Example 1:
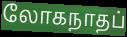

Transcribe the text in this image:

லோகநாதப்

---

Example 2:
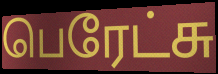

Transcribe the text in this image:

பெரேட்சு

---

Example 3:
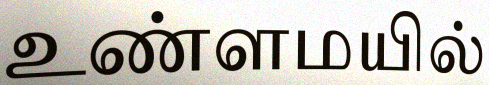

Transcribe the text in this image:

உண்ளமயில்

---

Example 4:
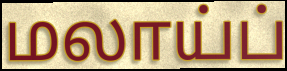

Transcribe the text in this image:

மலாய்ப்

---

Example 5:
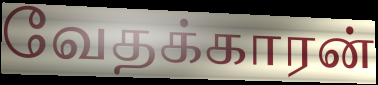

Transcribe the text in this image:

வேதக்காரன்